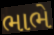
ભાભે